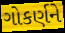
ગોકર્ણને